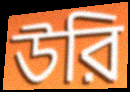
উরি